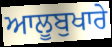
ਆਲੂਬੁਖਾਰੇ